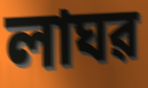
লাঘৱ